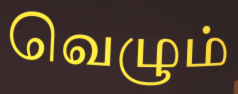
வெழும்